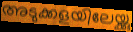
അടുക്കളയിലേയ്ക്കു